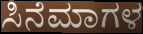
ಸಿನೆಮಾಗಳ